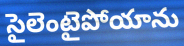
సైలెంటైపోయాను